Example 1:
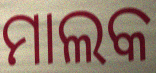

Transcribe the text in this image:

ମାଲକ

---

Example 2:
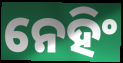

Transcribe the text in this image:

ନେହିଂ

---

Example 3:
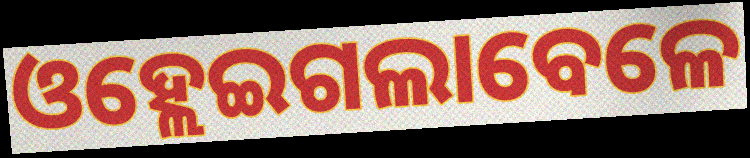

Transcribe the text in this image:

ଓହ୍ଲେଇଗଲାବେଳେ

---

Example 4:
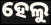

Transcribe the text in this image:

ହେଲୁ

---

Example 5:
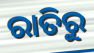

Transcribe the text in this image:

ରାତିରୁ